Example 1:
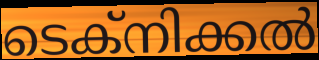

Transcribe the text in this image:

ടെക്നിക്കൽ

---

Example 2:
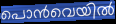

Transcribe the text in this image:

പൊൻവെയിൽ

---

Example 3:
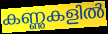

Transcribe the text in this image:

കണ്ണുകളിൽ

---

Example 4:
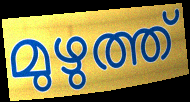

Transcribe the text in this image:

മുഴുത്ത്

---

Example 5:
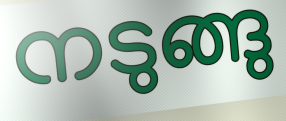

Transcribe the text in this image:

നടുങ്ങു